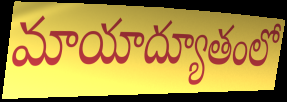
మాయాద్యూతంలో